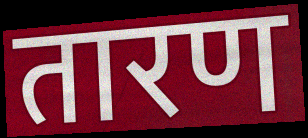
तारण